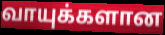
வாயுக்களான